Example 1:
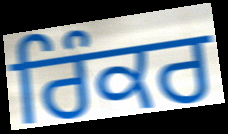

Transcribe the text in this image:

ਰਿੰਕਰ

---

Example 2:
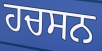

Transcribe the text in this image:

ਹਚਸਨ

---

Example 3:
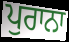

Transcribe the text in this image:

ਪੁਰਾਨਾ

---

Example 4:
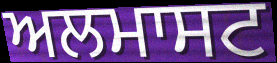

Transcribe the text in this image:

ਅਲਮਾਸਟ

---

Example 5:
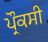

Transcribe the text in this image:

ਪ੍ਰੌਕਸੀ